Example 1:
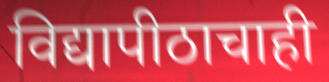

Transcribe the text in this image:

विद्यापीठाचाही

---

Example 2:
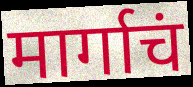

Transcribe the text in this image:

मार्गाचं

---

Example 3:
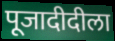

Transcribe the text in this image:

पूजादीदीला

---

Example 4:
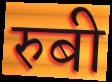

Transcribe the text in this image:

रुबी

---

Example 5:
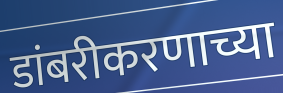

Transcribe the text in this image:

डांबरीकरणाच्या